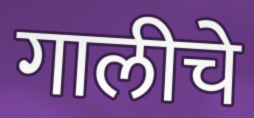
गालीचे